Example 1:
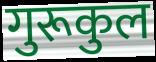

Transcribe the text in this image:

गुरूकुल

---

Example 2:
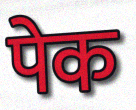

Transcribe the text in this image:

पेक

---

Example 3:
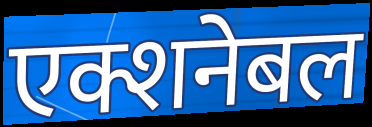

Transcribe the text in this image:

एक्शनेबल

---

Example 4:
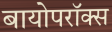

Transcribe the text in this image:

बायोपरॉक्स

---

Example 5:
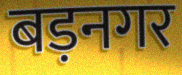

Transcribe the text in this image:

बड़नगर